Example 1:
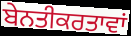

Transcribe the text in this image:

ਬੇਨਤੀਕਰਤਾਵਾਂ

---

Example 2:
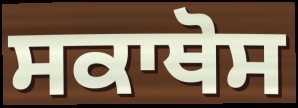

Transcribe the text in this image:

ਸਕਾਥੋਸ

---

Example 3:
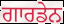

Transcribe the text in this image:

ਗਾਰਡੇਨ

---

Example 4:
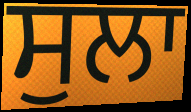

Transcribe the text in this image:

ਸੁਲਾ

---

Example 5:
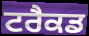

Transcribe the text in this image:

ਟਰੈਕਡ